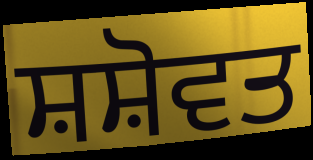
ਸ਼ਸ਼ੋਵਤ